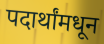
पदार्थांमधून